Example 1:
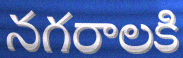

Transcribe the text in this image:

నగరాలకి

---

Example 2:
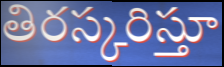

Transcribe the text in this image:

తిరస్కరిస్తూ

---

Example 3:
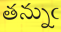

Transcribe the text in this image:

తన్నుఁ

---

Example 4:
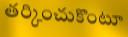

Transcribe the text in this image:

తర్కించుకొంటూ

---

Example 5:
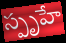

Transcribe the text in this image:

స్పృహే